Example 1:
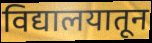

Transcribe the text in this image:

विद्यालयातून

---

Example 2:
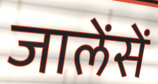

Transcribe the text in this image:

जालेंसें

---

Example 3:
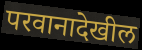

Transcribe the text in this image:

परवानादेखील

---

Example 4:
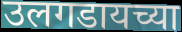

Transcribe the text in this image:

उलगडायच्या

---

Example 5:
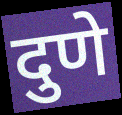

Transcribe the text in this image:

दुणे